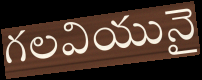
గలవియునై